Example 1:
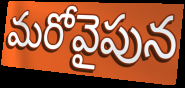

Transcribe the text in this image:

మరోవైపున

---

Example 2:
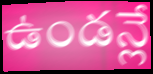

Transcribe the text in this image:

ఉండన్లే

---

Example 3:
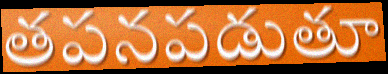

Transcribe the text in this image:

తపనపడుతూ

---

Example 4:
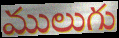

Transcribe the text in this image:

ములుగు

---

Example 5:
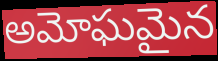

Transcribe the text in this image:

అమోఘమైన